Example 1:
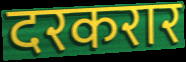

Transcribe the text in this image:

दरकरार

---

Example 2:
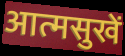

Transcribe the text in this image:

आत्मसुखें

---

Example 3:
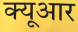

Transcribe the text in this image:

क्‍यूआर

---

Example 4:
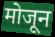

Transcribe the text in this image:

मोजून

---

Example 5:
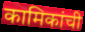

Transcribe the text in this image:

कामिकांची